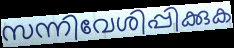
സന്നിവേശിപ്പിക്കുക